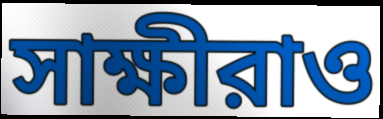
সাক্ষীরাও